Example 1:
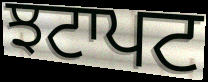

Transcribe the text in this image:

ਝਟਾਪਟ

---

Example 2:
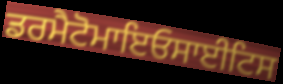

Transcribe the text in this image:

ਡਰਮੈਟੋਮਾਇਓਸਾਈਟਿਸ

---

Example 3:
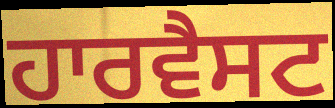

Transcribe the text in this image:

ਹਾਰਵੈਸਟ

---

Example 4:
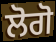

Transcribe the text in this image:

ਲੋਗੋ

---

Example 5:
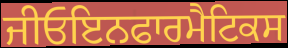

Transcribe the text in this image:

ਜੀਓਇਨਫਾਰਮੈਟਿਕਸ